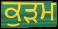
ਕੁੜਮ